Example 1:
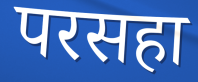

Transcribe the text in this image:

परसहा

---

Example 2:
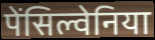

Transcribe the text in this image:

पेंसिल्वेनिया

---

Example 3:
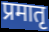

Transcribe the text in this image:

प्रमातृ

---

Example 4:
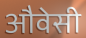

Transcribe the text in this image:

औवेसी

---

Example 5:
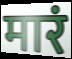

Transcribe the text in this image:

मारं